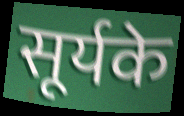
सूर्यके